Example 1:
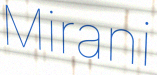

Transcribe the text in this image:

Mirani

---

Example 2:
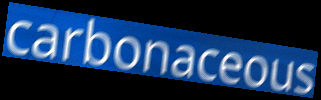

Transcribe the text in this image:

carbonaceous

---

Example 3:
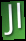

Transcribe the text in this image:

Jl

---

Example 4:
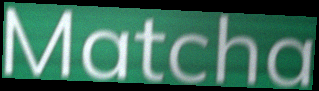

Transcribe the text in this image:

Matcha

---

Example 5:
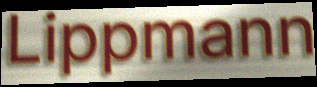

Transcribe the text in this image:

Lippmann